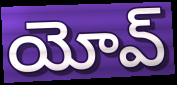
యోవ్